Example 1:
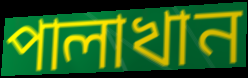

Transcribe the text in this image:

পালাখান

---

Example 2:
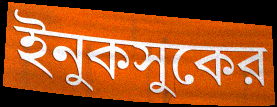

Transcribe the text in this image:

ইনুকসুকের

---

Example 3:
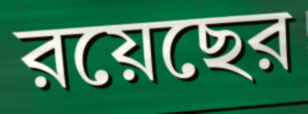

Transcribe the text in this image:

রয়েছের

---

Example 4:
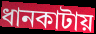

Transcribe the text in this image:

ধানকাটায়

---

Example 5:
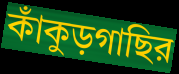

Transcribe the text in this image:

কাঁকুড়গাছির